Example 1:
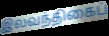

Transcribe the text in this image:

இலவந்திகைப்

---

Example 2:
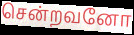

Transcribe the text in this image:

சென்றவனோ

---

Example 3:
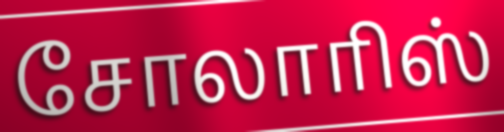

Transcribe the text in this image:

சோலாரிஸ்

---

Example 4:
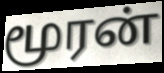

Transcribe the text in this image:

மூரன்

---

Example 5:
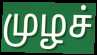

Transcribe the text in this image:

முழச்